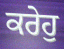
ਕਰੇਹੁ